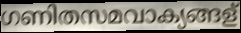
ഗണിതസമവാക്യങ്ങള്